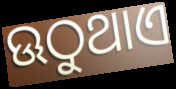
ଊଠୁଥାଏ